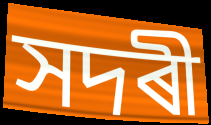
সদৰী